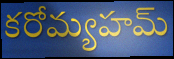
కరోమ్యహమ్